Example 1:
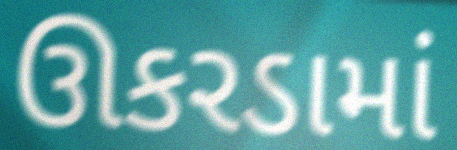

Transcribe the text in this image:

ઊકરડામાં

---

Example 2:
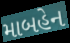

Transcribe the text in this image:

માબહેન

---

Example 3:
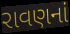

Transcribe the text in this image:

રાવણનાં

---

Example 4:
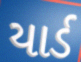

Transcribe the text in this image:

યાર્ડ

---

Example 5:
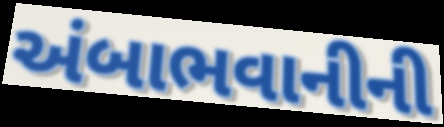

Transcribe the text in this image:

અંબાભવાનીની